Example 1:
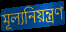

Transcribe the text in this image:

মূল্যনিয়ন্ত্রণ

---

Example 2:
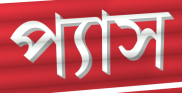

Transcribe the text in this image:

প্যাস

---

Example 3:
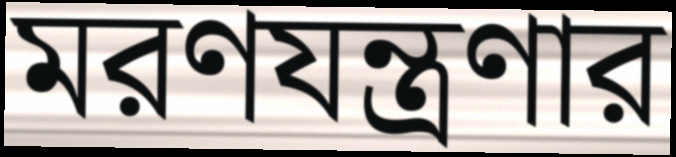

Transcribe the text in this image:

মরণযন্ত্রণার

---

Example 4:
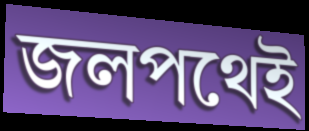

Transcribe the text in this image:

জলপথেই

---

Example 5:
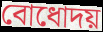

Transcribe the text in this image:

বোধোদয়